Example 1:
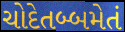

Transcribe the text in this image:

ચોદેતબ્બમેતં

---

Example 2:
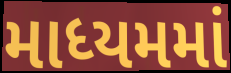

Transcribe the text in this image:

માધ્યમમાં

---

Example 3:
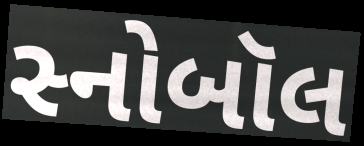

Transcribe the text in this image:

સ્નોબૉલ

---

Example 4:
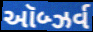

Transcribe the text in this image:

ઑબ્ઝર્વ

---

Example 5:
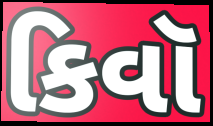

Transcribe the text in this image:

કિવૉ